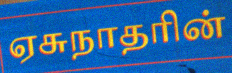
ஏசுநாதரின்